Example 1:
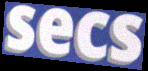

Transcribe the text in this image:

secs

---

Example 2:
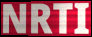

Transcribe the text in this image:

NRTI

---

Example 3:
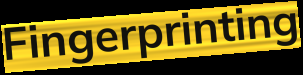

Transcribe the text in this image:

Fingerprinting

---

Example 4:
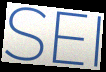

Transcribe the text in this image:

SEI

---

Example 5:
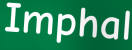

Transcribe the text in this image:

Imphal